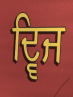
ਦ੍ਵਿਜ